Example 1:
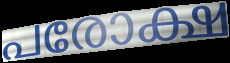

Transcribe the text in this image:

പരോക്ഷ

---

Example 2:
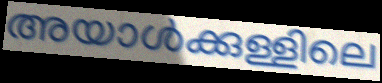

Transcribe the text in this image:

അയാൾക്കുള്ളിലെ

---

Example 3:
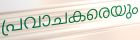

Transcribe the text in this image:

പ്രവാചകരെയും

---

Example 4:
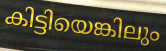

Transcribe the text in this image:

കിട്ടിയെങ്കിലും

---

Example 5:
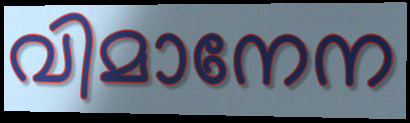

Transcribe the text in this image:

വിമാനേന